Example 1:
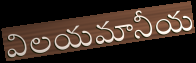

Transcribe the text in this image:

విలయమానీయ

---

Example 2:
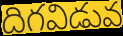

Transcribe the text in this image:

దిగవిడువ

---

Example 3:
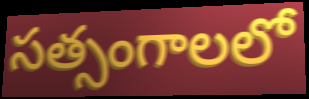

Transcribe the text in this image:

సత్సంగాలలో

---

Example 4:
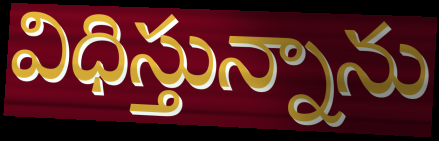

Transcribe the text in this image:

విధిస్తున్నాను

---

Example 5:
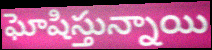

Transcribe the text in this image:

ఘోషిస్తున్నాయి